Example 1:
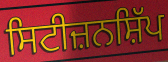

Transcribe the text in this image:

ਸਿਟੀਜ਼ਨਸ਼ਿੱਪ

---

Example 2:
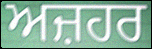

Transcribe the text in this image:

ਅਜ਼ਹਰ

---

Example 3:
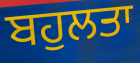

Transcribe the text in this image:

ਬਹੁਲਤਾ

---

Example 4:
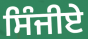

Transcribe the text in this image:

ਸਿੰਜੀਏ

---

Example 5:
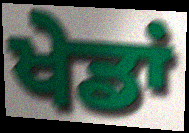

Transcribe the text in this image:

ਖੇਡਾਂ